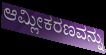
ಆಮ್ಲೀಕರಣವನ್ನು